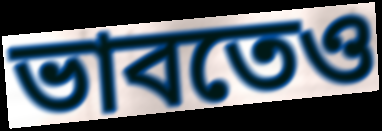
ভাবতেও